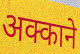
अक्काने